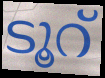
ടൂറ്